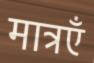
मात्रएँ